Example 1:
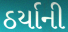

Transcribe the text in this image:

ઠર્યાની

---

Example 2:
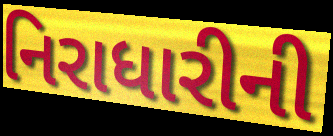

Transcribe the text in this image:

નિરાધારીની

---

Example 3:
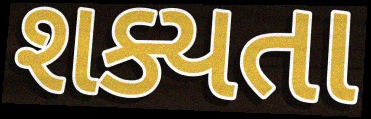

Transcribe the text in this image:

શક્યતા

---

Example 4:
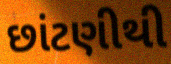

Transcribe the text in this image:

છાંટણીથી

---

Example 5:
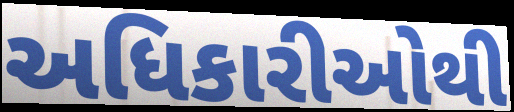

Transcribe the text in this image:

અધિકારીઓથી